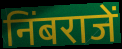
निंबराजें